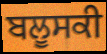
ਬਲੂਸਕੀ